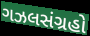
ગઝલસંગ્રહો